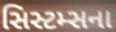
સિસ્ટમ્સના